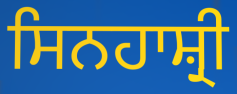
ਸਿਨਹਾਸ਼੍ਰੀ